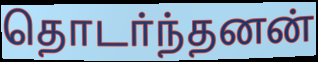
தொடர்ந்தனன்